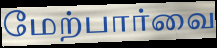
மேற்பார்வை